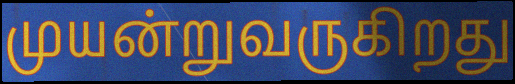
முயன்றுவருகிறது